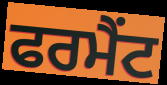
ਫਰਮੈਂਟ